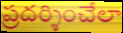
ప్రదర్శించేలా